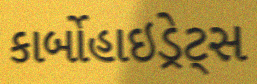
કાર્બોહાઇડ્રેટ્સ